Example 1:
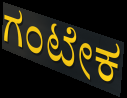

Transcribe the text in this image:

ಗಂಟೇಕ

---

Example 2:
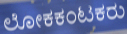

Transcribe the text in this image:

ಲೋಕಕಂಟಕರು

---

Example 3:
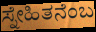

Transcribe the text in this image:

ಸ್ನೇಹಿತನೆಂಬ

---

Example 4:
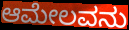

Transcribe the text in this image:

ಆಮೇಲವನು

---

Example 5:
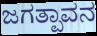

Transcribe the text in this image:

ಜಗತ್ಪಾವನ